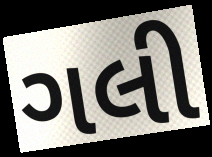
ગલી